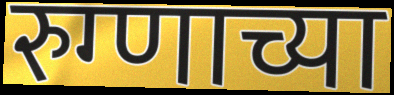
रुग्णाच्या